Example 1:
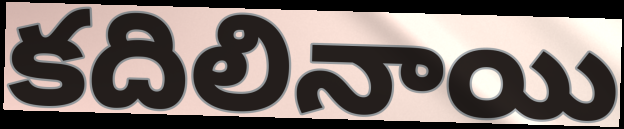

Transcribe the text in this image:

కదిలినాయి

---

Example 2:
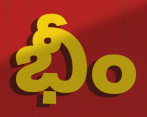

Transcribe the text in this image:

భీం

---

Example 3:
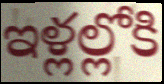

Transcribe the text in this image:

ఇళ్లల్లోకి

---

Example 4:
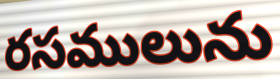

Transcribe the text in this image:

రసములును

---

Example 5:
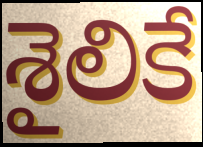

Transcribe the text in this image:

శైలికే